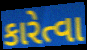
કારેત્વા